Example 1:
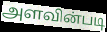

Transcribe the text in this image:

அளவின்படி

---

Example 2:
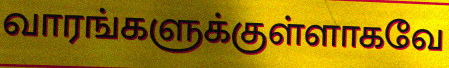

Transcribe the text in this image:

வாரங்களுக்குள்ளாகவே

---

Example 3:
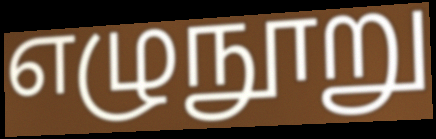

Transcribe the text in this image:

எழுநூறு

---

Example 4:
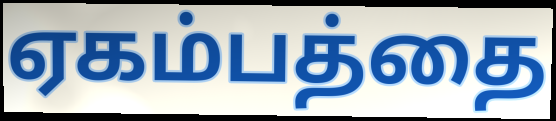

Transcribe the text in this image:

ஏகம்பத்தை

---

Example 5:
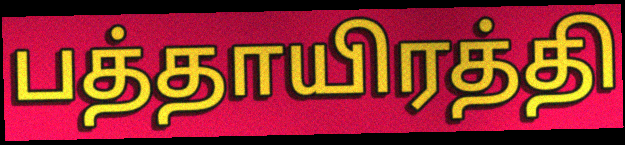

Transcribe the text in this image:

பத்தாயிரத்தி